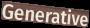
Generative